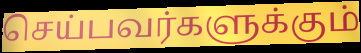
செய்பவர்களுக்கும்